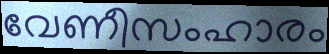
വേണീസംഹാരം